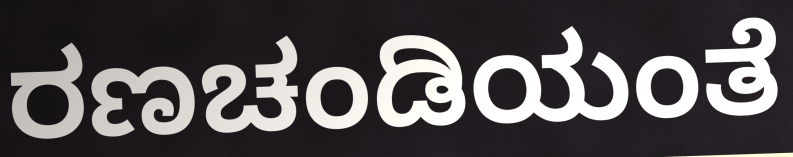
ರಣಚಂಡಿಯಂತೆ